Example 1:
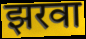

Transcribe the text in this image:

झरवा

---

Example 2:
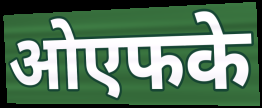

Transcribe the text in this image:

ओएफके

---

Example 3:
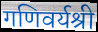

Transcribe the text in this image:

गणिवर्यश्री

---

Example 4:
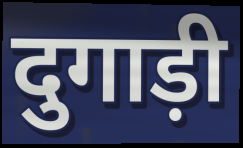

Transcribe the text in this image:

दुगाड़ी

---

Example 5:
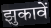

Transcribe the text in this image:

झुकावें